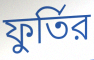
ফুর্তির